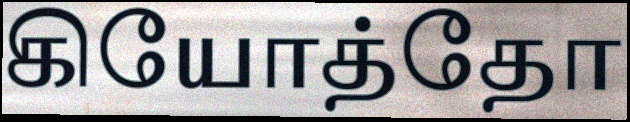
கியோத்தோ